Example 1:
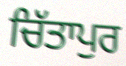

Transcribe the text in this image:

ਚਿੱਤਾਪੁਰ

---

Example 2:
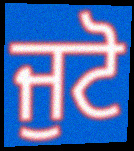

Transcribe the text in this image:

ਜੁਟੋ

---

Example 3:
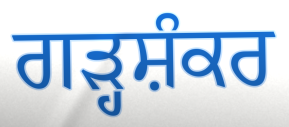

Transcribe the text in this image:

ਗੜ੍ਹਸ਼ੰਕਰ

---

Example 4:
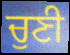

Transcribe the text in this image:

ਚੁਣੀ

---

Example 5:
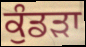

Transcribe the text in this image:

ਕੁੰਡੜਾ